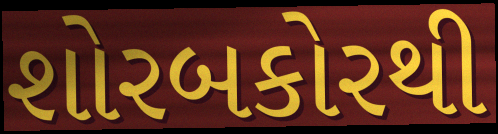
શોરબકોરથી